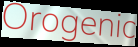
Orogenic